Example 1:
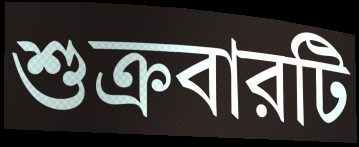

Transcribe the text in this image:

শুক্রবারটি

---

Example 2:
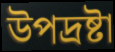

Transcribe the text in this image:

উপদ্রষ্টা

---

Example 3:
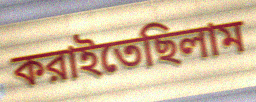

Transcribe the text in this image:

করাইতেছিলাম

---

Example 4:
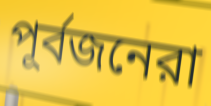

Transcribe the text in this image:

পূর্বজনেরা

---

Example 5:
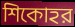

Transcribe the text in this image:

শিকোহর